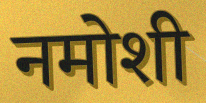
नमोशी